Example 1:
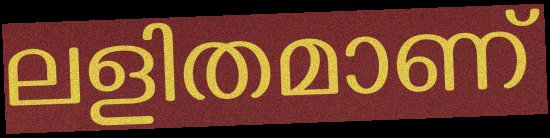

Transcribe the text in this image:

ലളിതമാണ്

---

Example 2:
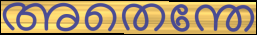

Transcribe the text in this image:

അതെന്തേ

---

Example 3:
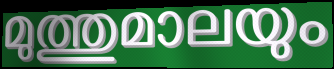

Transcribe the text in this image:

മുത്തുമാലയും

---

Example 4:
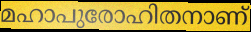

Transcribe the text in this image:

മഹാപുരോഹിതനാണ്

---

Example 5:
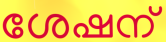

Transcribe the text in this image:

ശേഷന്